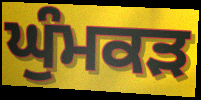
ਘੁੰਮਕੜ